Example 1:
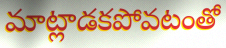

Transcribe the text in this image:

మాట్లాడకపోవటంతో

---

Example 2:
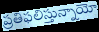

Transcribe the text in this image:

ప్రతిఫలిస్తున్నాయో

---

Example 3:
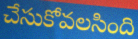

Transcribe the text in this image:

చేసుకోవలసింది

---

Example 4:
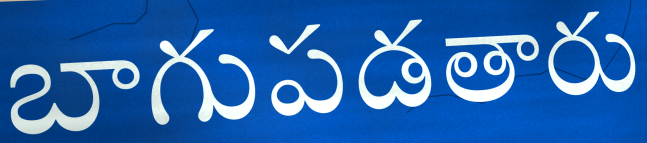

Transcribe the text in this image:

బాగుపడతారు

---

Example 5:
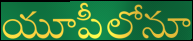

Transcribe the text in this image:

యూపీలోనూ